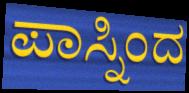
ಪಾಸ್ನಿಂದ